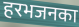
हरभजनका